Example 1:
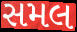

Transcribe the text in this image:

સમલ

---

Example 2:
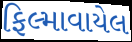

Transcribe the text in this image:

ફિલ્માવાયેલ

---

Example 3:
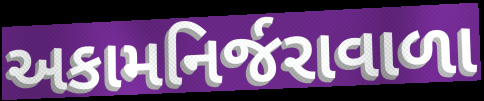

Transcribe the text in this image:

અકામનિર્જરાવાળા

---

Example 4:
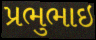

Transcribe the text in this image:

પ્રભુભાઇ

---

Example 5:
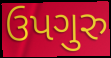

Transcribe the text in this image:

ઉપગુરુ